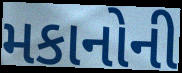
મકાનોની